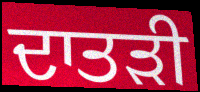
ਦਾਤੜੀ